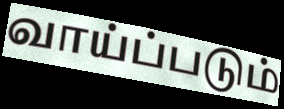
வாய்ப்படும்